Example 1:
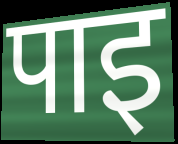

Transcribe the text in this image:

पाइ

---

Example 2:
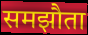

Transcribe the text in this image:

समझौता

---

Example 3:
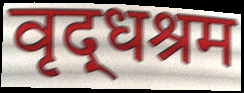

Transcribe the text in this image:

वृद्धश्रम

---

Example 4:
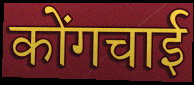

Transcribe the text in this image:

कोंगचाई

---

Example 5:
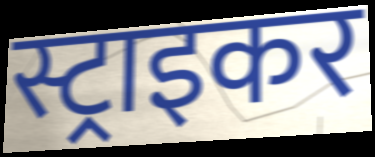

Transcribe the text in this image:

स्ट्राइकर